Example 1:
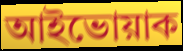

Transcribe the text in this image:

আইভোয়াক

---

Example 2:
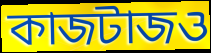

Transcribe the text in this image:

কাজটাজও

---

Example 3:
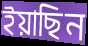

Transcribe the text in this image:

ইয়াছিন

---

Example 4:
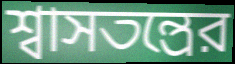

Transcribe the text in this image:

শ্বাসতন্ত্রের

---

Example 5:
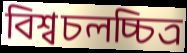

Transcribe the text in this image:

বিশ্বচলচ্চিত্র